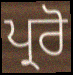
ਪ੍ਰਰੋ